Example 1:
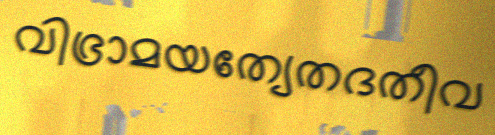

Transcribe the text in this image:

വിഭ്രാമയത്യേതദതീവ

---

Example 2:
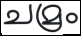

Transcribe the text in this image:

ചമ്രം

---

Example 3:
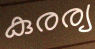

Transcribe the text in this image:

കുരര്യ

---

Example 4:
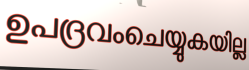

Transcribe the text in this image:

ഉപദ്രവംചെയ്യുകയില്ല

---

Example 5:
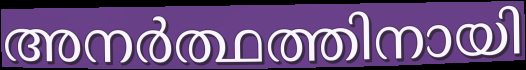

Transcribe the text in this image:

അനർത്ഥത്തിനായി